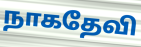
நாகதேவி